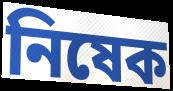
নিষেক